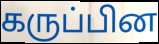
கருப்பின